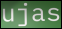
ujas